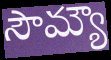
సౌమ్యౌ